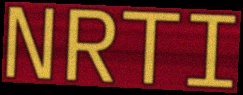
NRTI